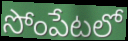
సోంపేటలో